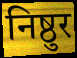
निष्ठुर